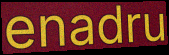
enadru